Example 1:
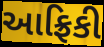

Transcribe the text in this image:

આફ્રિકી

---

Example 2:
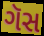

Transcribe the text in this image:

ગૅસ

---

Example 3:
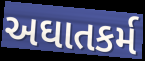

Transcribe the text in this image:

અઘાતકર્મ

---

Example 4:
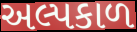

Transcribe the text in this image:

અલ્પકાળ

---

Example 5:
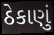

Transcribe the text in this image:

ઠેકાણું